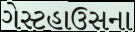
ગેસ્ટહાઉસના